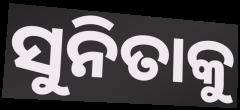
ସୁନିତାକୁ